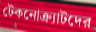
টেকনোক্র্যাটদের